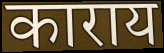
काराय